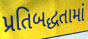
પ્રતિબદ્ધતામાં